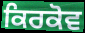
ਕਿਰਕੋਵ